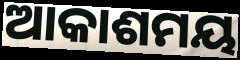
ଆକାଶମୟ